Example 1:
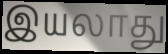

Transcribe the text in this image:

இயலாது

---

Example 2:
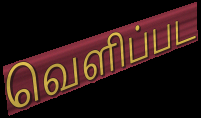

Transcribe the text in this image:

வெளிப்பட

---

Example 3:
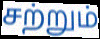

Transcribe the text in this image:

சற்றும்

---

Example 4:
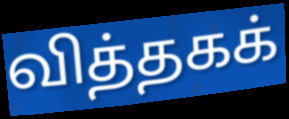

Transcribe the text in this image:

வித்தகக்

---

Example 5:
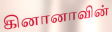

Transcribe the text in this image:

கினானாவின்